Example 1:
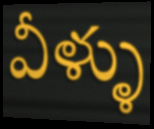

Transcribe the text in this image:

వీళ్ళు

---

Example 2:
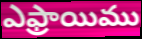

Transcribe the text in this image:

ఎఫ్రాయిము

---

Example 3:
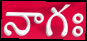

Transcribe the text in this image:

నాగః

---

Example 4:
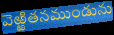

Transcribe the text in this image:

వెఱ్ఱితనముండును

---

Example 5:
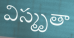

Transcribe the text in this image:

విస్మృతా